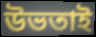
উভতাই